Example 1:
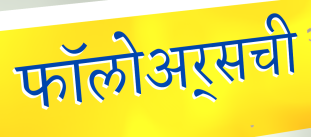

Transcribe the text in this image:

फॉलोअर्सची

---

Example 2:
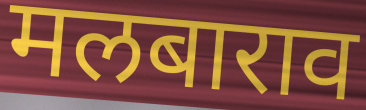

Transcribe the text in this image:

मलबाराव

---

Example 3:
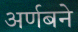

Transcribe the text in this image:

अर्णबने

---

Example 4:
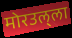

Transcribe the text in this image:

मोरउल्ला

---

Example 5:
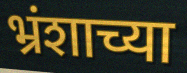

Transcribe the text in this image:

भ्रंशाच्या